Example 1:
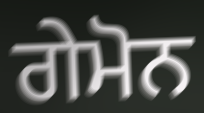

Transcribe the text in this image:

ਗੇਮੋਨ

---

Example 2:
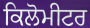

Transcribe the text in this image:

ਕਿਲੋਮੀਟਰ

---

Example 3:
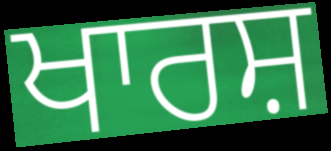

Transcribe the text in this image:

ਖਾਰਸ਼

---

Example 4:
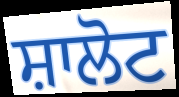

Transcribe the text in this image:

ਸ਼ਾਲੋਟ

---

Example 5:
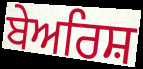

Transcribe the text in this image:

ਬੇਅਰਿਸ਼